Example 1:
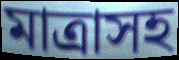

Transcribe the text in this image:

মাত্রাসহ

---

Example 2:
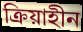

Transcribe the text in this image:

ক্রিয়াহীন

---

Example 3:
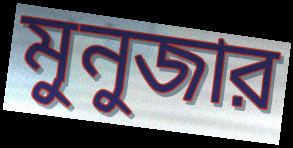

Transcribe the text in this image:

মুনুজার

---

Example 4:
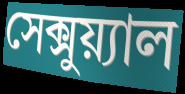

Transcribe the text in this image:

সেক্সুয়্যাল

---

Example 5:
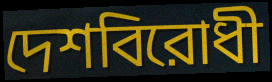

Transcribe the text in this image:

দেশবিরোধী